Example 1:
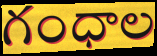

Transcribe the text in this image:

గంధాల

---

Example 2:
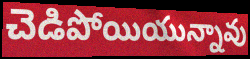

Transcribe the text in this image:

చెడిపోయియున్నావు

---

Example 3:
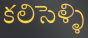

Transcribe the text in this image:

కలిసెళ్ళి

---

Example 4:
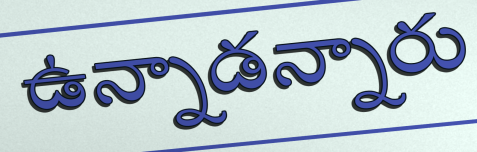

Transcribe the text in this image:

ఉన్నాడన్నారు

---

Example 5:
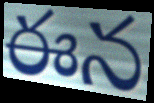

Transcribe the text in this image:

ఈన